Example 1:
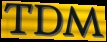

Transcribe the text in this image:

TDM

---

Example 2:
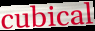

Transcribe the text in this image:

cubical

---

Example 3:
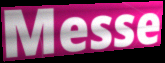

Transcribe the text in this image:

Messe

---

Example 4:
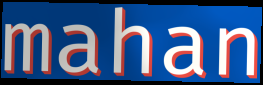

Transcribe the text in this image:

mahan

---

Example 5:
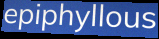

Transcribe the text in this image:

epiphyllous